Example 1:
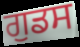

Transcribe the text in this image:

ਗੁਡਸ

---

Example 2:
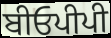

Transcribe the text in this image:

ਬੀਓਪੀਪੀ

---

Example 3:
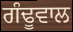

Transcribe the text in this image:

ਗੰਢੂਵਾਲ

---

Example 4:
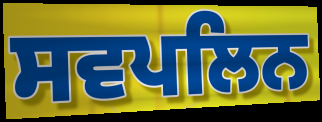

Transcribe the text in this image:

ਸਵਪਲਿਨ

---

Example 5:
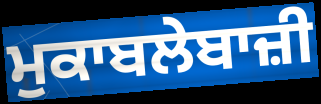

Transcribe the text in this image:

ਮੁਕਾਬਲੇਬਾਜ਼ੀ